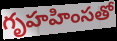
గృహహింసతో